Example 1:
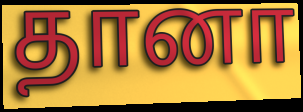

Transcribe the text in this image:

தானா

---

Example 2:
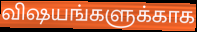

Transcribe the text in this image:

விஷயங்களுக்காக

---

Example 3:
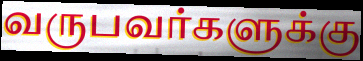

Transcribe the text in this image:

வருபவர்களுக்கு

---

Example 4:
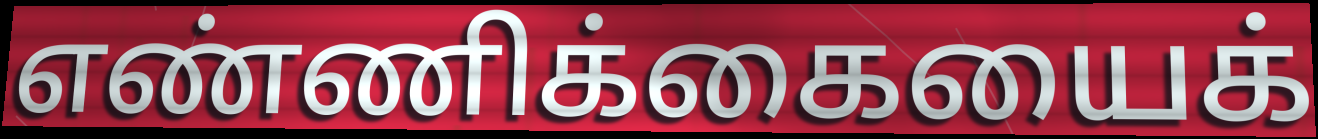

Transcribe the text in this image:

எண்ணிக்கையைக்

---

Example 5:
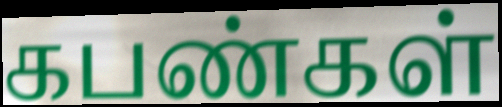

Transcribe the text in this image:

கபண்கள்